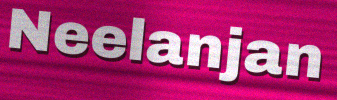
Neelanjan